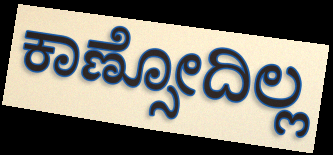
ಕಾಣ್ಸೋದಿಲ್ಲ